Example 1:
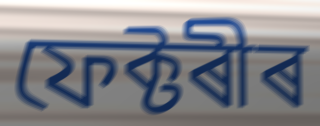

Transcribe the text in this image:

ফেক্টৰীৰ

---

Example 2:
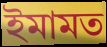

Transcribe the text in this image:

ইমামত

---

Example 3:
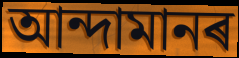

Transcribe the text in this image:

আন্দামানৰ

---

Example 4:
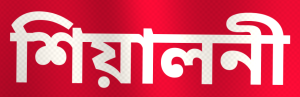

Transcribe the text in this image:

শিয়ালনী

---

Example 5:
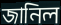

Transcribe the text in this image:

জানিল